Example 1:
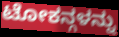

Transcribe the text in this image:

ಟೋಕನ್ಗಳನ್ನು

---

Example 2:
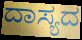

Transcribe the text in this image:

ದಾಸ್ಯದ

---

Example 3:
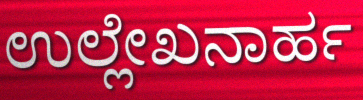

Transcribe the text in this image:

ಉಲ್ಲೇಖನಾರ್ಹ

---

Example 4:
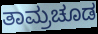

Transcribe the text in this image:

ತಾಮ್ರಚೂಡ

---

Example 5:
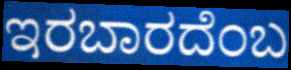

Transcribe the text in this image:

ಇರಬಾರದೆಂಬ